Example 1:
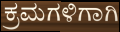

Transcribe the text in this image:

ಕ್ರಮಗಳಿಗಾಗಿ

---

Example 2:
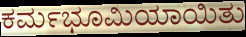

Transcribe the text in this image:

ಕರ್ಮಭೂಮಿಯಾಯಿತು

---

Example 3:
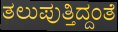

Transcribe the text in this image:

ತಲುಪುತ್ತಿದ್ದಂತೆ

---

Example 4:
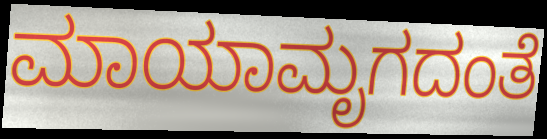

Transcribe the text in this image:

ಮಾಯಾಮೃಗದಂತೆ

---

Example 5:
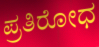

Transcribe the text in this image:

ಪ್ರತಿರೋಧ